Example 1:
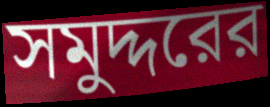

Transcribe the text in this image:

সমুদ্দরের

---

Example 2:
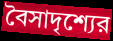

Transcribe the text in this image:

বৈসাদৃশ্যের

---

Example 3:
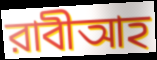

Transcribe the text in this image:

রাবীআহ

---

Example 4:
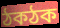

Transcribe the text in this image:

ঠকঠক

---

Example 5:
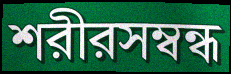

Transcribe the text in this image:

শরীরসম্বন্ধ